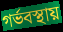
গর্ভবস্থায়